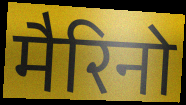
मैरिनो